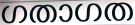
ഗതാഗത